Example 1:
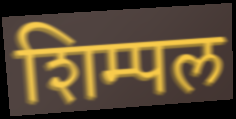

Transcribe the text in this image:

शिम्पल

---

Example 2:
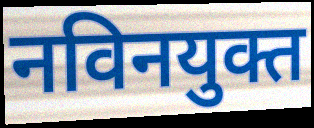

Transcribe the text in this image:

नविनयुक्त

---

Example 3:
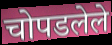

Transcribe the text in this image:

चोपडलेले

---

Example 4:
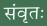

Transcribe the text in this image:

संवृतः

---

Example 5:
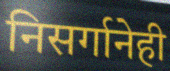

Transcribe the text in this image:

निसर्गानेही